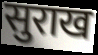
सुराख